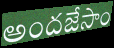
అందజేసాం